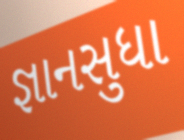
જ્ઞાનસુધા